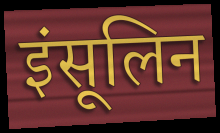
इंसूलिन